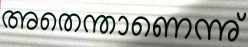
അതെന്താണെന്നു്